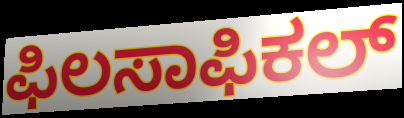
ಫಿಲಸಾಫಿಕಲ್